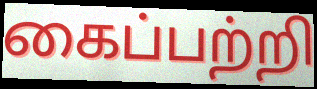
கைப்பற்றி